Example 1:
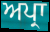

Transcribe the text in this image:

ਅਪ੍ਰਾ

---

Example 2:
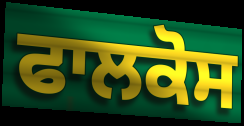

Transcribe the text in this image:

ਫਾਲਕੋਸ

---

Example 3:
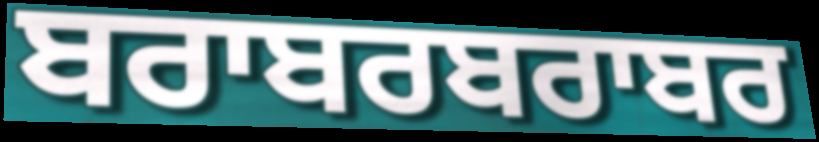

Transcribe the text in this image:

ਬਰਾਬਰਬਰਾਬਰ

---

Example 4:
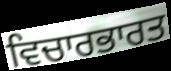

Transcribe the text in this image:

ਵਿਚਾਰਭਾਰਤ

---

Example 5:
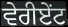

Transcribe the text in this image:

ਵੇਰੀਏਂਟ